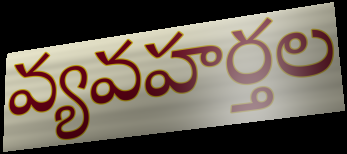
వ్యవహర్తల